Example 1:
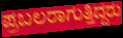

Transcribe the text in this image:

ಪ್ರಬಲರಾಗುತ್ತಿದ್ದರು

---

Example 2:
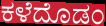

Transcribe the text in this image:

ಕಳೆದೊಡಂ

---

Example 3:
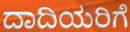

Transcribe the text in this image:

ದಾದಿಯರಿಗೆ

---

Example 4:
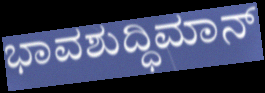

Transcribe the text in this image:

ಭಾವಶುದ್ಧಿಮಾನ್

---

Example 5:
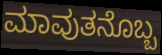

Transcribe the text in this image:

ಮಾವುತನೊಬ್ಬ